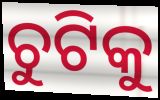
ଚୁଟିକୁ